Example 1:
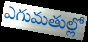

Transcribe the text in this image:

ఎగుమతుల్లో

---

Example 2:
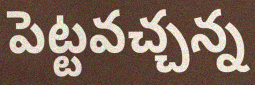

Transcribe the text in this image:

పెట్టవచ్చన్న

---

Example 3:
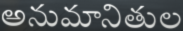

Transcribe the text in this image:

అనుమానితుల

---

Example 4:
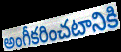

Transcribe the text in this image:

అంగీకరించటానికి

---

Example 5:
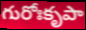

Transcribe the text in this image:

గురోఃకృపా